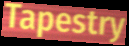
Tapestry